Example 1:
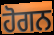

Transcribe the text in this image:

ਹੋਗਨ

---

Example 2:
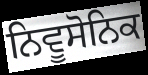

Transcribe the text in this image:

ਨਿਵੂਸੋਨਿਕ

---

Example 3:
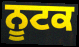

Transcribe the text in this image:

ਨੂਟਕ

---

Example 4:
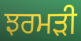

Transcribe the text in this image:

ਝਰਮੜੀ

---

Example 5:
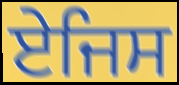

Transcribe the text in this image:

ਏਜਿਸ